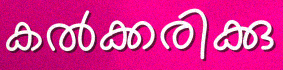
കൽക്കരിക്കു